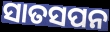
ସାତସପନ